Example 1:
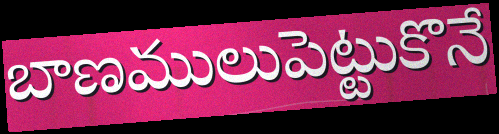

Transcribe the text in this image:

బాణములుపెట్టుకొనే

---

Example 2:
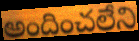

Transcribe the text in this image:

అందించలేని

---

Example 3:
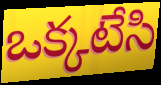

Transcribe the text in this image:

ఒక్కటేసి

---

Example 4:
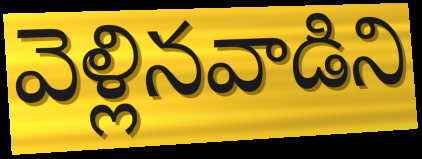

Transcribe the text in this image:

వెళ్లినవాడిని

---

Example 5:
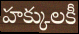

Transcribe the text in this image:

హక్కులకీ